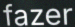
fazer